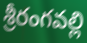
శ్రీరంగవల్లి